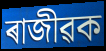
ৰাজীৱক